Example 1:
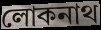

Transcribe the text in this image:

লোকনাথ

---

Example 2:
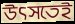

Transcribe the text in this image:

উৎসতেই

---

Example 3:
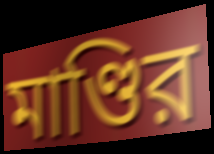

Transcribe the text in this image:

মাণ্ডির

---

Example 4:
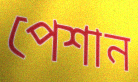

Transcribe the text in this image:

পেশান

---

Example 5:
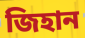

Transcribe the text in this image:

জিহান